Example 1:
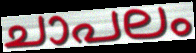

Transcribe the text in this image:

ചാപലം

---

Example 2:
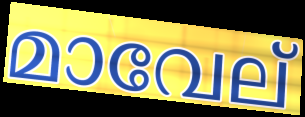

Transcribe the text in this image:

മാവേല്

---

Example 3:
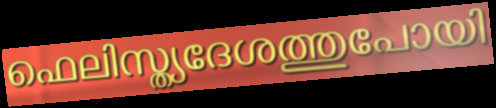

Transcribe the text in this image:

ഫെലിസ്ത്യദേശത്തുപോയി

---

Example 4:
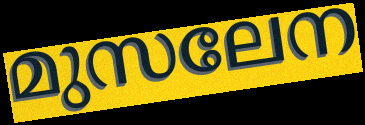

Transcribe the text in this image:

മുസലേന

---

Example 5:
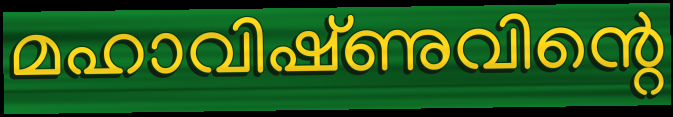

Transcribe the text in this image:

മഹാവിഷ്‌ണുവിന്റെ